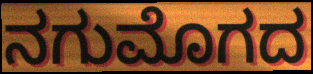
ನಗುಮೊಗದ